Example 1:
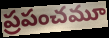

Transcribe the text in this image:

ప్రపంచమూ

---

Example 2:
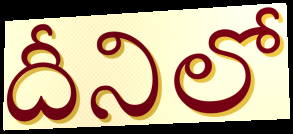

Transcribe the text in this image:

దీనిలో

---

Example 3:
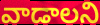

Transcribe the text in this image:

వాడాలని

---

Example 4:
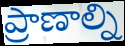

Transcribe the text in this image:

ప్రాణాల్ని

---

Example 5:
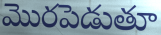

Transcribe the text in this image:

మొరపెడుతూ